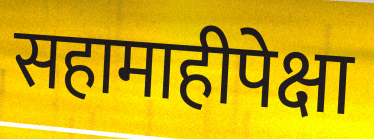
सहामाहीपेक्षा